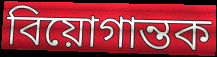
বিয়োগান্তক